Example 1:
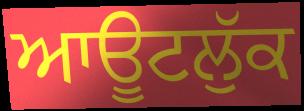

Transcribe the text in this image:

ਆਊਟਲੁੱਕ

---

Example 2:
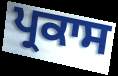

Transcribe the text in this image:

ਪ੍ਰਕਾਸ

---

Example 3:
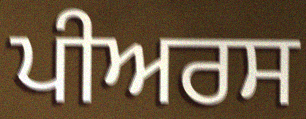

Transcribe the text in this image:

ਪੀਅਰਸ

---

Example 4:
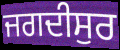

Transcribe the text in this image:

ਜਗਦੀਸੁਰ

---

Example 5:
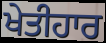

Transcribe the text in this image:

ਖੇਤੀਹਾਰ